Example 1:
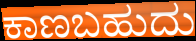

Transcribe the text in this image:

ಕಾಣಬಹುದು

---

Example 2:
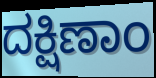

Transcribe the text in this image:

ದಕ್ಷಿಣಾಂ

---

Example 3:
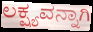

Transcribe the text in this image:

ಲಕ್ಷ್ಯವನ್ನಾಗಿ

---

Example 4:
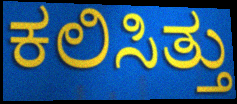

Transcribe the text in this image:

ಕಲಿಸಿತ್ತು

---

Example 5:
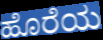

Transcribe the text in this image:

ಹೊರೆಯ